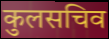
कुलसचिव